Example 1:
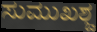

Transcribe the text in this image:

ಸುಮುಖಶ್ಚ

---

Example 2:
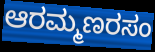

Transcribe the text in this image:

ಆರಮ್ಮಣರಸಂ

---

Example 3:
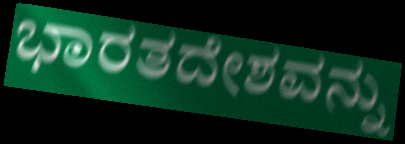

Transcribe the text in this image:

ಭಾರತದೇಶವನ್ನು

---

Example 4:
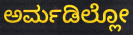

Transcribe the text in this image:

ಅರ್ಮಡಿಲ್ಲೋ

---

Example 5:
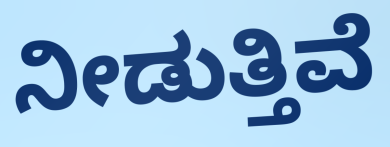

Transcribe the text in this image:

ನೀಡುತ್ತಿವೆ